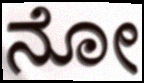
ನೋ